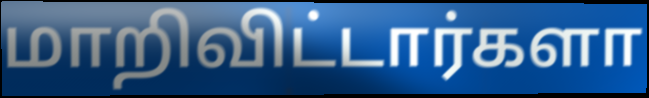
மாறிவிட்டார்களா